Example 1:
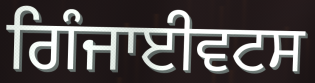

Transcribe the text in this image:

ਗਿੰਜਾਈਵਟਸ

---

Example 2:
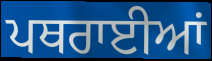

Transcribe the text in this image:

ਪਥਰਾਈਆਂ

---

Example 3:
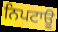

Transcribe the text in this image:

ਨਿਪਟਾਊ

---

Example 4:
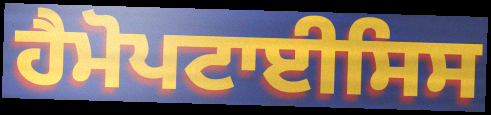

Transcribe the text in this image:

ਹੈਮੋਪਟਾਈਸਿਸ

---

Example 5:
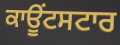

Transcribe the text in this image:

ਕਾਊਂਟਸਟਾਰ